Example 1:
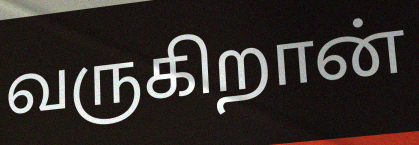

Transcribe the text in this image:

வருகிறான்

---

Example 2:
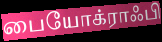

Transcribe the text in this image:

பையோக்ராஃபி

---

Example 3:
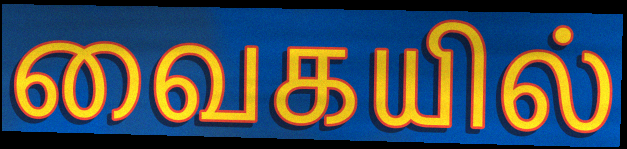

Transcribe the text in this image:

வைகயில்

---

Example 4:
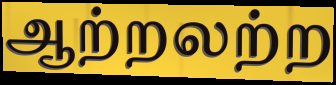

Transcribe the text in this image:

ஆற்றலற்ற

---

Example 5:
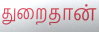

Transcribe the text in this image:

துறைதான்